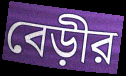
বেড়ীর